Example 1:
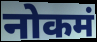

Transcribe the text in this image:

नोकमं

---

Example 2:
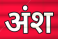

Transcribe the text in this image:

अंश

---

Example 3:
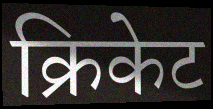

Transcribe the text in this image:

क्रिकेट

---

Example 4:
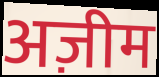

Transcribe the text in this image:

अज़ीम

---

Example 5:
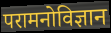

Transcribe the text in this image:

परामनोविज्ञान